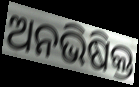
ଅନଭିଷିକ୍ତ